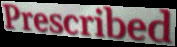
Prescribed